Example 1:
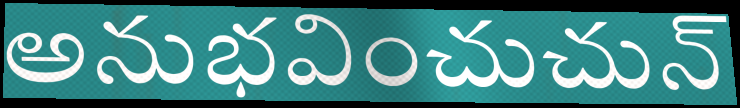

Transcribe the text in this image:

అనుభవించుచున్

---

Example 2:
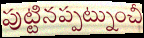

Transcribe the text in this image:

పుట్టినప్పట్నుంచీ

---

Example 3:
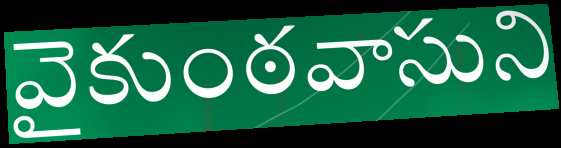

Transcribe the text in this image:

వైకుంఠవాసుని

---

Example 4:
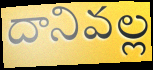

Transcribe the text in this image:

దానివల్ల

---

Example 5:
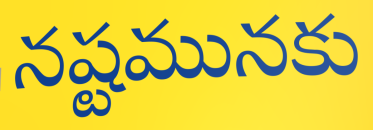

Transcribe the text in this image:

నష్టమునకు